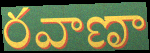
రవాణా